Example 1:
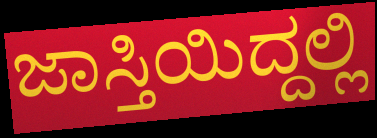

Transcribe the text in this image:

ಜಾಸ್ತಿಯಿದ್ದಲ್ಲಿ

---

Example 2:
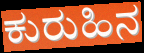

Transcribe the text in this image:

ಕುರುಹಿನ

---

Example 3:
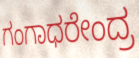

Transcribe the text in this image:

ಗಂಗಾಧರೇಂದ್ರ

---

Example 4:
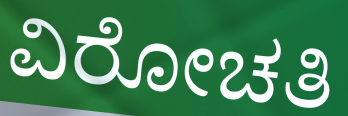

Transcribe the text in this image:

ವಿರೋಚತಿ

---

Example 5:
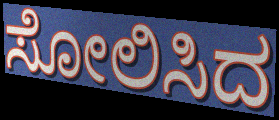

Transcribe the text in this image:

ಸೋಲಿಸಿದ